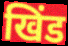
खिंड